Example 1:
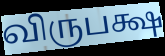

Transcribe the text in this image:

விருபக்ஷ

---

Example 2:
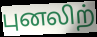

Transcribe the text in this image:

புனலிற்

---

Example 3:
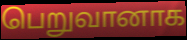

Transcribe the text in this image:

பெறுவானாக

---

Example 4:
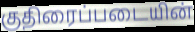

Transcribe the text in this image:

குதிரைப்படையின்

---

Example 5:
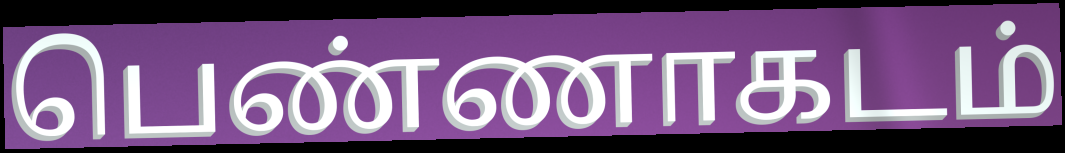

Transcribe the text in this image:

பெண்ணாகடம்